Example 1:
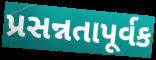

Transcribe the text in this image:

પ્રસન્નતાપૂર્વક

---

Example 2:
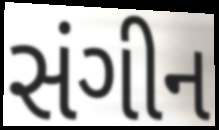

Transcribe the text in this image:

સંગીન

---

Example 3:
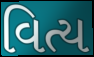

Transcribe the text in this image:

વિત્ય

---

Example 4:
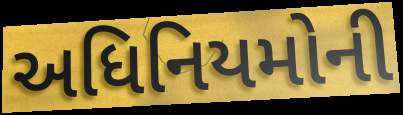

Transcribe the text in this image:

અધિનિયમોની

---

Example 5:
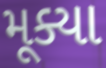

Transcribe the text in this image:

મૂક્યા